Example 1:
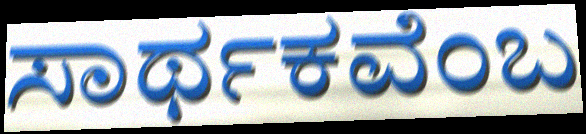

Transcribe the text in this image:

ಸಾರ್ಥಕವೆಂಬ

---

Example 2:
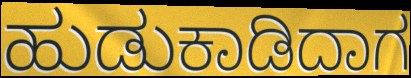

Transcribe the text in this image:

ಹುಡುಕಾಡಿದಾಗ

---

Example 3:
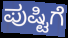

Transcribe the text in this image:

ಪುಷ್ಟಿಗೆ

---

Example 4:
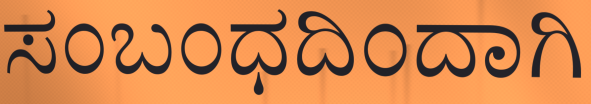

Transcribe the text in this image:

ಸಂಬಂಧದಿಂದಾಗಿ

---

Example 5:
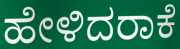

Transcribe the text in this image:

ಹೇಳಿದರಾಕೆ